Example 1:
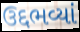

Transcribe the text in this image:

ઉદ્દભવ્યાં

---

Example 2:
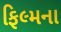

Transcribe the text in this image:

ફિલ્મના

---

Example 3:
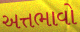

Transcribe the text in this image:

અત્તભાવો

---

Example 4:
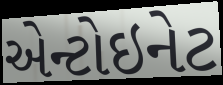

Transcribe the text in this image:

એન્ટોઇનેટ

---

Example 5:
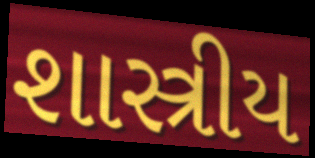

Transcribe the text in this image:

શાસ્ત્રીય